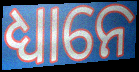
ଧ୍ୟାନେ